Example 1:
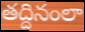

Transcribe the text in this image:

తద్దినంలా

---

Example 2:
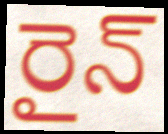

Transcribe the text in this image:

రైన్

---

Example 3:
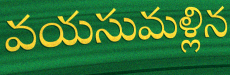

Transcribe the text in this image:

వయసుమళ్లిన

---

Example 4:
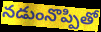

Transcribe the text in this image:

నడుంనొప్పితో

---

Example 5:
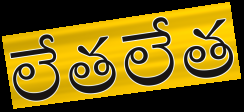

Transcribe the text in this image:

లేతలేత